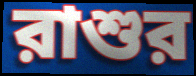
রাশুর